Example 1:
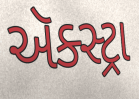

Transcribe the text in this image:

ઍક્સ્ટ્રા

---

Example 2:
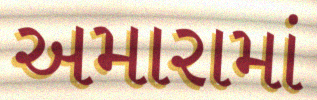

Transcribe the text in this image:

અમારામાં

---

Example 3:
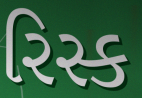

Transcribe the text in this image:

રિસ્ક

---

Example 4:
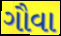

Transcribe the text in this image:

ગૌવા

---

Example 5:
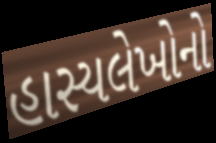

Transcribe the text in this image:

હાસ્યલેખોનો